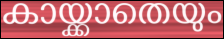
കായ്ക്കാതെയും